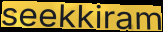
seekkiram